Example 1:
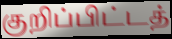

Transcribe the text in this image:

குறிப்பிட்டத்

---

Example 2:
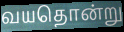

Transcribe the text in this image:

வயதொன்று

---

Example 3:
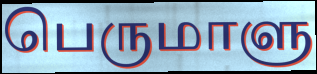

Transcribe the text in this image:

பெருமாளு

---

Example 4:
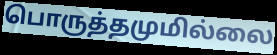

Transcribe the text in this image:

பொருத்தமுமில்லை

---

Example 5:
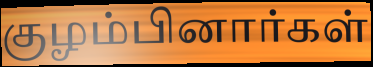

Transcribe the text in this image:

குழம்பினார்கள்